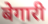
बेगारी